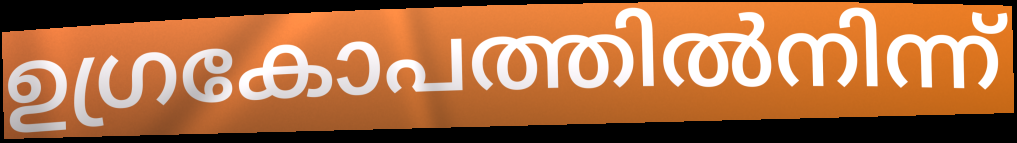
ഉഗ്രകോപത്തിൽനിന്ന്